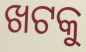
ଖଟକୁ